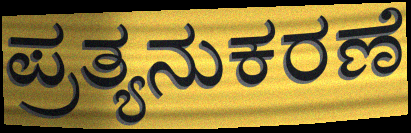
ಪ್ರತ್ಯನುಕರಣೆ